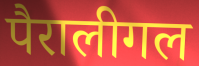
पैरालीगल